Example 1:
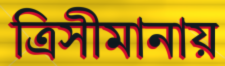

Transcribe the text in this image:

ত্রিসীমানায়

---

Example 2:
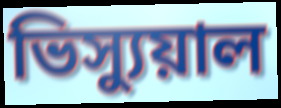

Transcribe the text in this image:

ভিস্যুয়াল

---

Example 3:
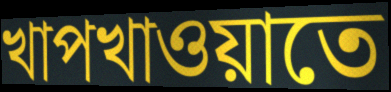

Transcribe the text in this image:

খাপখাওয়াতে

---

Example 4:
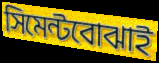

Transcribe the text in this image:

সিমেন্টবোঝাই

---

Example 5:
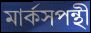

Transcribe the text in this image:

মার্কসপন্থী